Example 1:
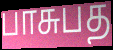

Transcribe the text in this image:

பாசுபத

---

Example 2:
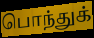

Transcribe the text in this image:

பொந்துக்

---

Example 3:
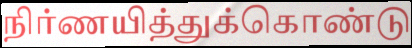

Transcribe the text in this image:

நிர்ணயித்துக்கொண்டு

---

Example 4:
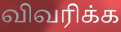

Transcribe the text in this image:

விவரிக்க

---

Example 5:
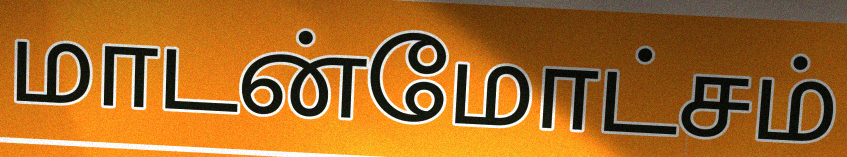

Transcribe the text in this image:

மாடன்மோட்சம்